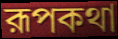
রূপকথা